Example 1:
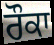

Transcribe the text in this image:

ਰੌਕਾ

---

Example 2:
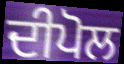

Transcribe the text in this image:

ਦੀਪੋਲ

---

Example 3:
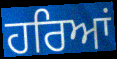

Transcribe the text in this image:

ਹਰਿਆਂ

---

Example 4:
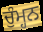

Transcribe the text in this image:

ਚੁੰਮ੍ਹਨ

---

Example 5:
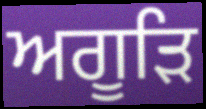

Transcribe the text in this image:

ਅਗੂੜਿ